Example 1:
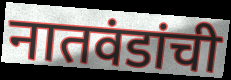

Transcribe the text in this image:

नातवंडांची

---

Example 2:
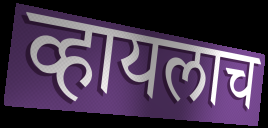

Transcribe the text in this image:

व्हायलाच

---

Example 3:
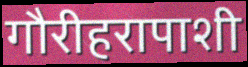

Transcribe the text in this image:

गौरीहरापाशी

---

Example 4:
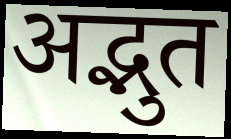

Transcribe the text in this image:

अद्भुत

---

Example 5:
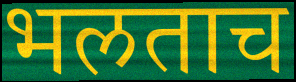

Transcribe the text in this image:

भलताच